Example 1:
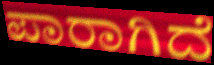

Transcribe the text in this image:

ಪಾರಾಗಿದೆ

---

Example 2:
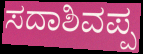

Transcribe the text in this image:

ಸದಾಶಿವಪ್ಪ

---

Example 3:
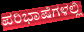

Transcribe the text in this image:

ಪರಿಭಾಷೆಗಳಲ್ಲಿ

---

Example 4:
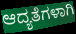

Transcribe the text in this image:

ಆದ್ಯತೆಗಳಾಗಿ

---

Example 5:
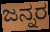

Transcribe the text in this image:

ಜನ್ನರ